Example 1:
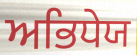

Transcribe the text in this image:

ਅਭਿਧੇਯ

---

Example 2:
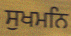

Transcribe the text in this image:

ਸੁਖਮਨਿ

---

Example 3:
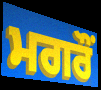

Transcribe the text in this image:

ਮਗਰੌਂ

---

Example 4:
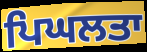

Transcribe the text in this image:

ਪਿਘਲਤਾ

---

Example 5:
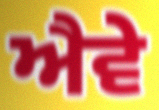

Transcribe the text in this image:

ਐਵੇ